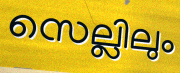
സെല്ലിലും